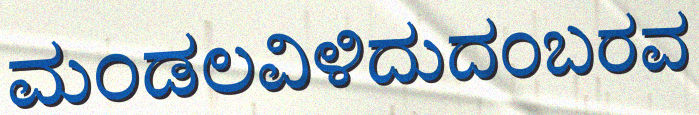
ಮಂಡಲವಿಳಿದುದಂಬರವ